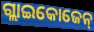
ଗ୍ଲାଇକୋଜେନ୍